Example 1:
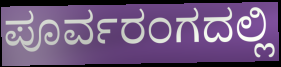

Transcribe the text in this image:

ಪೂರ್ವರಂಗದಲ್ಲಿ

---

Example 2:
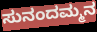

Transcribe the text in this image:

ಸುನಂದಮ್ಮನ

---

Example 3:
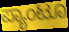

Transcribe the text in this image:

ಪ್ಯಾಂಟೂ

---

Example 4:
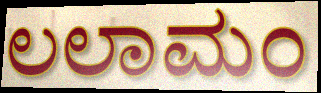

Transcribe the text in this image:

ಲಲಾಮಂ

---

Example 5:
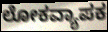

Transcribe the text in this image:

ಲೋಕವ್ಯಾಪಕ